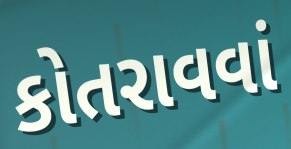
કોતરાવવાં